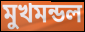
মুখমন্ডল